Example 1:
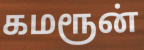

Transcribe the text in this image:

கமரூன்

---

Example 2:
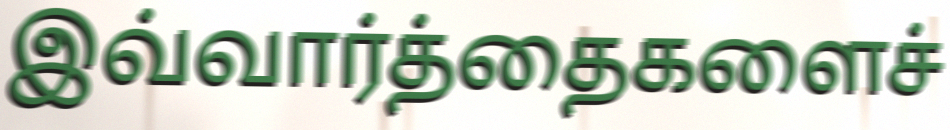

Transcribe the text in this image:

இவ்வார்த்தைகளைச்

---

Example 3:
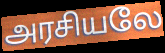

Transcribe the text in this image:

அரசியலே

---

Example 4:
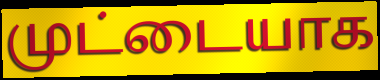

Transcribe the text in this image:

முட்டையாக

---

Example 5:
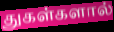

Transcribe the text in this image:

துகள்களால்